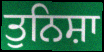
ਤੁਨਿਸ਼ਾ